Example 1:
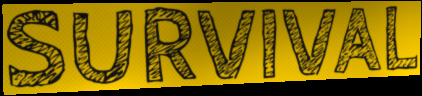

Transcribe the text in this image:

SURVIVAL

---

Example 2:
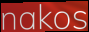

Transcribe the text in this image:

nakos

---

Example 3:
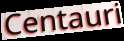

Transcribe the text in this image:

Centauri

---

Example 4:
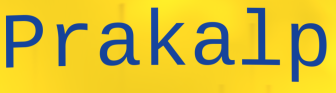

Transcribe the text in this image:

Prakalp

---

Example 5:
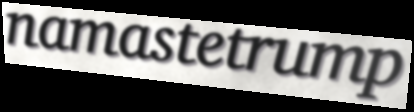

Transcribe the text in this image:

namastetrump